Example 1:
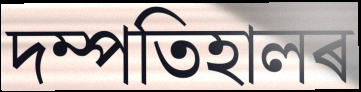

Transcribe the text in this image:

দম্পতিহালৰ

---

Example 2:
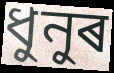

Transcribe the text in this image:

ধুনুৰ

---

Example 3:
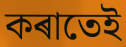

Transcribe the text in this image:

কৰাতেই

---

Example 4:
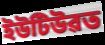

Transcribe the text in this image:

ইউটিউৱত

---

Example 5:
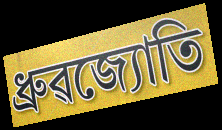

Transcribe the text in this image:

ধ্ৰুৱজ্যোতি